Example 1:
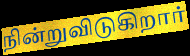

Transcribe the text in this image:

நின்றுவிடுகிறார்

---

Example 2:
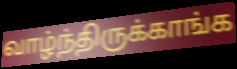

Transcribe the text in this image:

வாழ்ந்திருக்காங்க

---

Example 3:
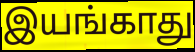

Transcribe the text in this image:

இயங்காது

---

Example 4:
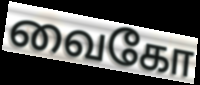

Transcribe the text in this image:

வைகோ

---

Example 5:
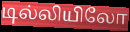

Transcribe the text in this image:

டில்லியிலோ